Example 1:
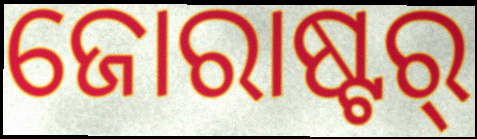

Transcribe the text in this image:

ଜୋରାଷ୍ଟର୍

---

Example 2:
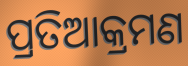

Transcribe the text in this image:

ପ୍ରତିଆକ୍ରମଣ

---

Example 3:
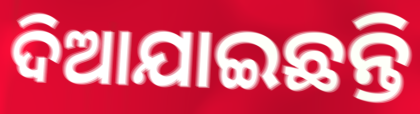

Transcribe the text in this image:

ଦିଆଯାଇଛନ୍ତି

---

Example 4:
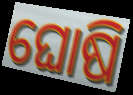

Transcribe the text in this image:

ଘୋଷି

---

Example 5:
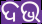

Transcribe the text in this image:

ଦଭ